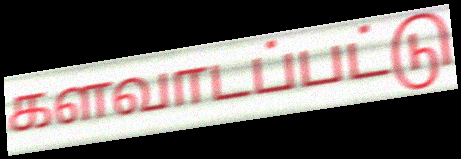
களவாடப்பட்டு